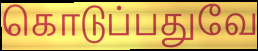
கொடுப்பதுவே